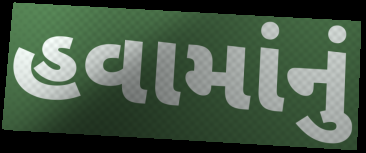
હવામાંનું